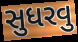
સુધરવુ